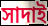
সাদাই